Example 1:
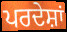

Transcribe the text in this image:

ਪਰਦੇਸ਼ਾਂ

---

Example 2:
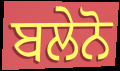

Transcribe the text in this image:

ਬਲੇਨੋ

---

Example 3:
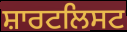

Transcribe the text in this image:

ਸ਼ਾਰਟਲਿਸਟ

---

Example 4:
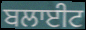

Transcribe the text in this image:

ਬਲਾਈਟ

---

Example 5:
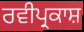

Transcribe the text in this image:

ਰਵੀਪ੍ਰਕਾਸ਼